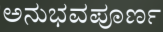
ಅನುಭವಪೂರ್ಣ